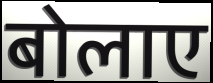
बोलाए